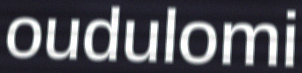
oudulomi